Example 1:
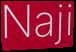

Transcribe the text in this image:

Naji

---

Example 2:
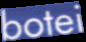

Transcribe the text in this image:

botei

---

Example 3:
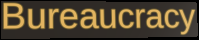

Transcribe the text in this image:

Bureaucracy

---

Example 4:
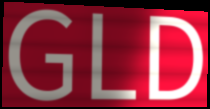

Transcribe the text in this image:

GLD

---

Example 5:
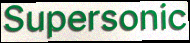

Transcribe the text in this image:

Supersonic